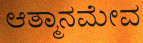
ಆತ್ಮಾನಮೇವ